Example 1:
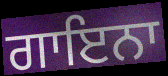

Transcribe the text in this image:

ਗਾਇਨਾ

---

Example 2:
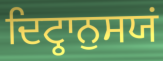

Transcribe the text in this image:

ਦਿਟ੍ਠਾਨੁਸਯਂ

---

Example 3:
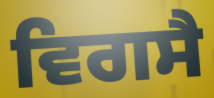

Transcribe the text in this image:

ਵਿਗਸੈ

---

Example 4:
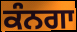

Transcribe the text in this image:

ਕੰਨਗਾ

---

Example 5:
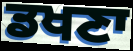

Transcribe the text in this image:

ਡਖਣਾ